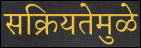
सक्रियतेमुळे